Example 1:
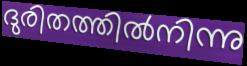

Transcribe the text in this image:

ദുരിതത്തിൽനിന്നു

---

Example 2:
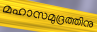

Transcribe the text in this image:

മഹാസമുദ്രത്തിനു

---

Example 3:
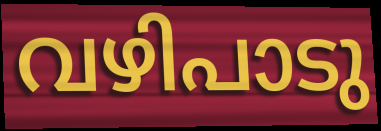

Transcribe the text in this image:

വഴിപാടു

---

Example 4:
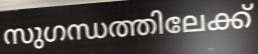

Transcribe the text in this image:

സുഗന്ധത്തിലേക്ക്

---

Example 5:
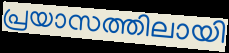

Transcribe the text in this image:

പ്രയാസത്തിലായി